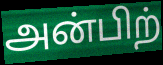
அன்பிற்